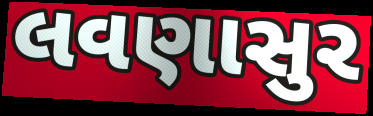
લવણાસુર